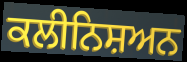
ਕਲੀਨਿਸ਼ਅਨ